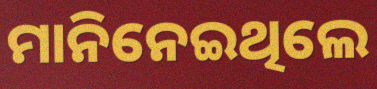
ମାନିନେଇଥିଲେ